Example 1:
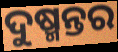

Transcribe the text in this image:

ଦୁଷ୍ମନ୍ତର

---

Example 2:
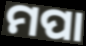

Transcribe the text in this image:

ମପା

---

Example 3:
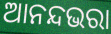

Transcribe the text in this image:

ଆନନ୍ଦଭରା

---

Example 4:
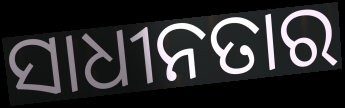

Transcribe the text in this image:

ସାଧୀନତାର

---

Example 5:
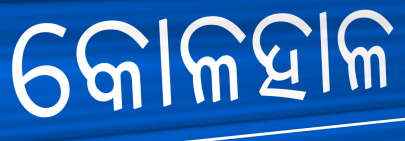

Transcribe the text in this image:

କୋଳହାଳ